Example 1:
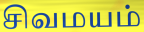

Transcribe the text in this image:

சிவமயம்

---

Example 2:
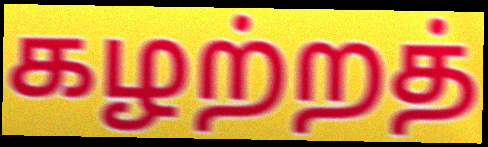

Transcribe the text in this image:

கழற்றத்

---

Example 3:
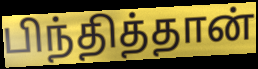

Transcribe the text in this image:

பிந்தித்தான்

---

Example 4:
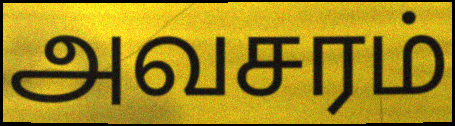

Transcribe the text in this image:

அவசரம்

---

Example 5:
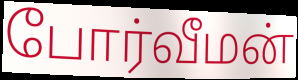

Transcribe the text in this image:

போர்வீமன்